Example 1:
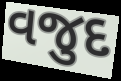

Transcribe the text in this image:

વજુદ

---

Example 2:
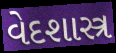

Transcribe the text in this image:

વેદશાસ્ત્ર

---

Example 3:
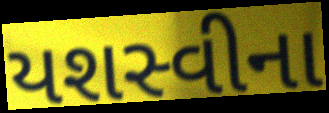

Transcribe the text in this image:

યશસ્વીના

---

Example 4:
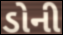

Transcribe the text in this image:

ડોની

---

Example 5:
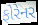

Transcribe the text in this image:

ફોરેનર